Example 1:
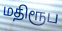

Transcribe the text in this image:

மதிரூப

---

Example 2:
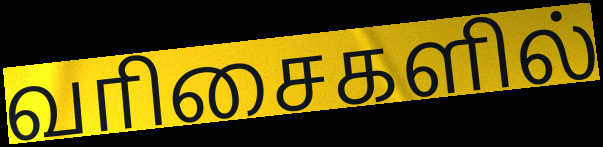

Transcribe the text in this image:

வரிசைகளில்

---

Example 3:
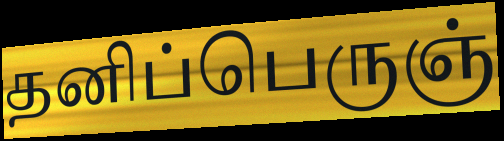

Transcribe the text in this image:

தனிப்பெருஞ்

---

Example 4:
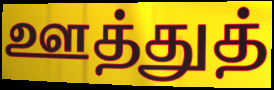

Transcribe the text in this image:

ஊத்துத்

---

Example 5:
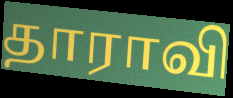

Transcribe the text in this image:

தாராவி